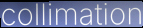
collimation